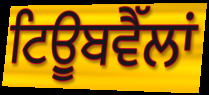
ਟਿਊੁਬਵੈੱਲਾਂ